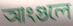
আংগুলে